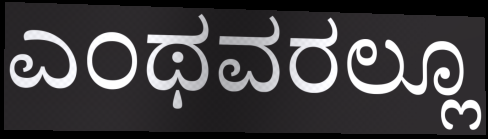
ಎಂಥವರಲ್ಲೂ